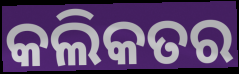
କଲିକତର